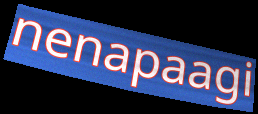
nenapaagi